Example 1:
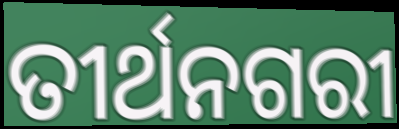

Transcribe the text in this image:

ତୀର୍ଥନଗରୀ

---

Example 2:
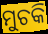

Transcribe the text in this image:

ମୁଚକି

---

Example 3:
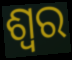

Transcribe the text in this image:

ଶ୍ୱର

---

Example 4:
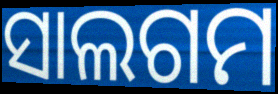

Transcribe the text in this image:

ସାଲଗମ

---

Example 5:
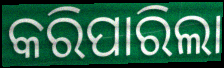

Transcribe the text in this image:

କରିପାରିଲା